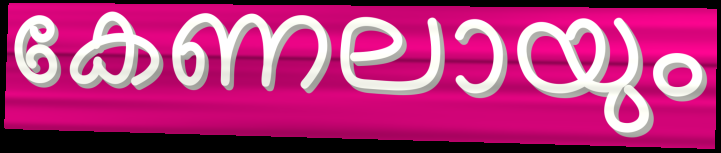
കേണലായും